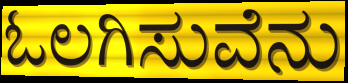
ಓಲಗಿಸುವೆನು